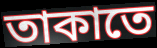
তাকাতে